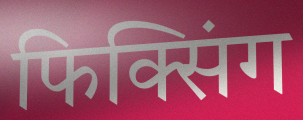
फिक्सिंग